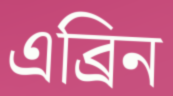
এব্ৰিন